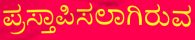
ಪ್ರಸ್ತಾಪಿಸಲಾಗಿರುವ